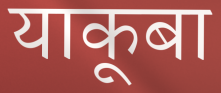
याकूबा